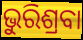
ଭୁରିଶ୍ରବା